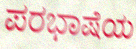
ಪರಭಾಷೆಯ